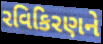
રવિકિરણને